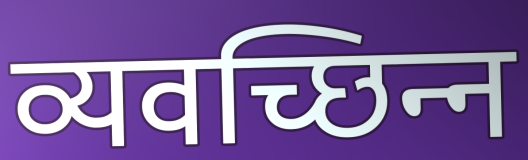
व्यवच्छिन्न